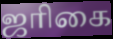
ஜரிகை